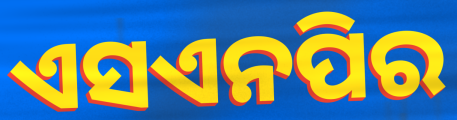
ଏସଏନପିର